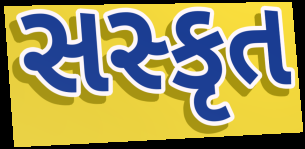
સસ્કૃત